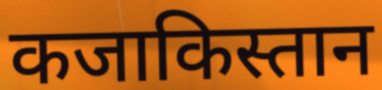
कजाकिस्तान